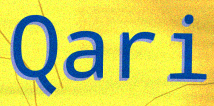
Qari